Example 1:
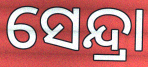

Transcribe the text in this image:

ସେନ୍ଦ୍ରା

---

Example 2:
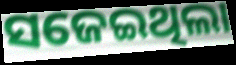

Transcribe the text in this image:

ସଜେଇଥିଲା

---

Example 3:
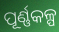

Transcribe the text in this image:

ପୂର୍ଣ୍ଣକଳ୍ପ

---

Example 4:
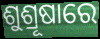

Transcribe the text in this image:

ଶୁଶ୍ରୂଷାରେ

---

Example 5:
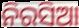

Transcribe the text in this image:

ନିରସିଆ